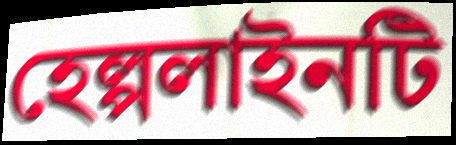
হেল্পলাইনটি